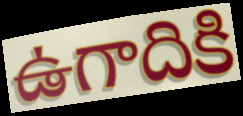
ఉగాదికి